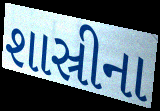
શાસ્રીના